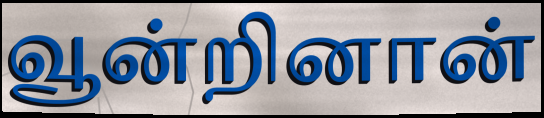
வூன்றினான்